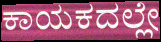
ಕಾಯಕದಲ್ಲೇ